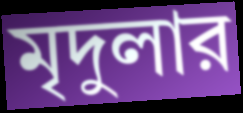
মৃদুলার